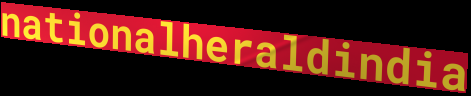
nationalheraldindia